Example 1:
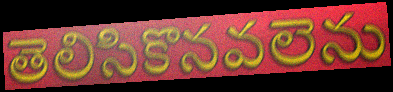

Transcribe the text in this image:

తెలిసికొనవలెను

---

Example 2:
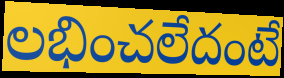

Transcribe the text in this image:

లభించలేదంటే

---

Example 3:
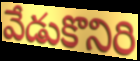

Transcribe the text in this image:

వేడుకొనిరి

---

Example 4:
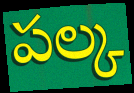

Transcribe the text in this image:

పల్క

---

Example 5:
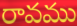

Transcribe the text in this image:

రావము